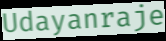
Udayanraje